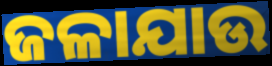
ଜଳାଯାଉ